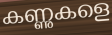
കണ്ണുകളെ